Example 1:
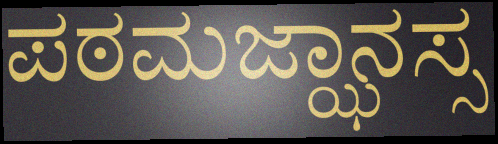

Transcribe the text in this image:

ಪಠಮಜ್ಝಾನಸ್ಸ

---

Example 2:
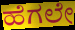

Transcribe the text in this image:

ಹೆಗಲೇ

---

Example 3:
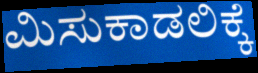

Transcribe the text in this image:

ಮಿಸುಕಾಡಲಿಕ್ಕೆ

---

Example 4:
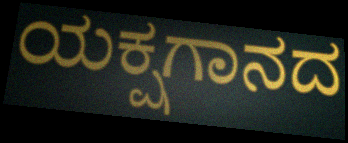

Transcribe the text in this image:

ಯಕ್ಷಗಾನದ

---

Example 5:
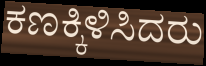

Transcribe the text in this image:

ಕಣಕ್ಕಿಳಿಸಿದರು